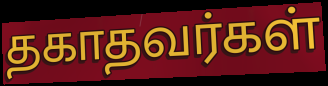
தகாதவர்கள்